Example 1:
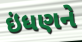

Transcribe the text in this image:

ઇંધણને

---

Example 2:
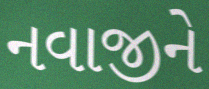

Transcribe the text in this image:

નવાજીને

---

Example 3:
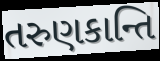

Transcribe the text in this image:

તરુણકાન્તિ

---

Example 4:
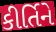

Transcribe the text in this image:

કીર્તિને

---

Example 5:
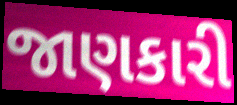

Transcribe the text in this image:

જાણકારી